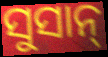
ସୁସାନ୍